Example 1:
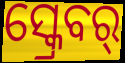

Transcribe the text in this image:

ସ୍କ୍ରେବର୍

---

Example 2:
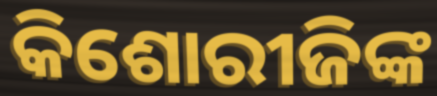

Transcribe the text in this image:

କିଶୋରୀଜିଙ୍କ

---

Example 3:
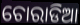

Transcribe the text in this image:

ଚୋରାଡିଆ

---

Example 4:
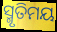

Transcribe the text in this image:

ସ୍ମୃତିମୟ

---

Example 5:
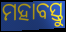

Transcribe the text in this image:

ମହାବସ୍ତୁ